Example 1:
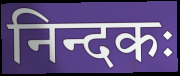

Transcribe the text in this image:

निन्दकः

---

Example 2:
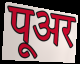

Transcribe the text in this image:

पूअर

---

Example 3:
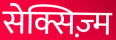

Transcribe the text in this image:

सेक्सिज़्म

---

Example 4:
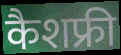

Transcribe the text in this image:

कैशफ्री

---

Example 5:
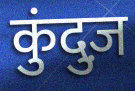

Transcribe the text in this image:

कुंदुज़